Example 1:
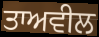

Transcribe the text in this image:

ਤਾਅਵੀਲ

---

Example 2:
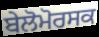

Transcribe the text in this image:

ਬੇਲੋਮੋਰਸਕ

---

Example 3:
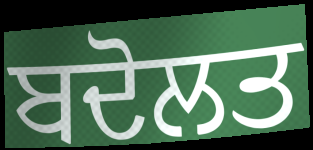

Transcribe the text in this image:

ਬਦੋਲਤ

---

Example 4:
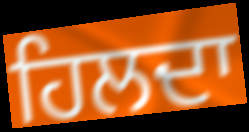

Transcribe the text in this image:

ਹਿਲਦਾ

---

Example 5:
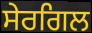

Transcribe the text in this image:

ਸੇਰਗਿਲ